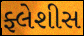
ફ્લેશીસ